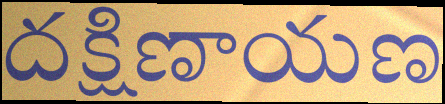
దక్షిణాయణ